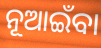
ନୂଆଇଁବା